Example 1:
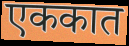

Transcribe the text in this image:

एककात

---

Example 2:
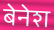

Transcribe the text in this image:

बेनेश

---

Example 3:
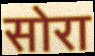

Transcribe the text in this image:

सोरा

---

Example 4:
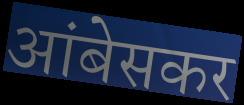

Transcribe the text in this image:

आंबेसकर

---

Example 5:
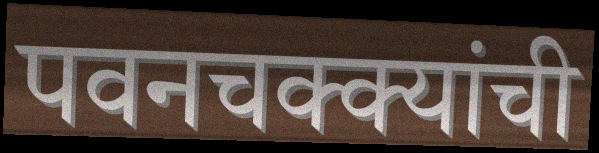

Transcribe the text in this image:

पवनचक्क्यांची